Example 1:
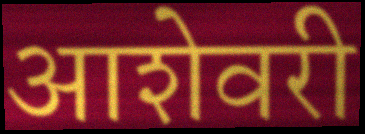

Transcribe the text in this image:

आशेवरी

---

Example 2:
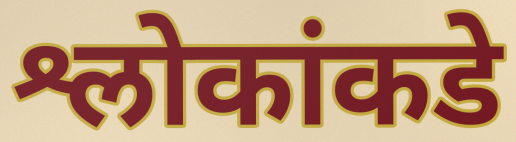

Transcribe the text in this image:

श्लोकांकडे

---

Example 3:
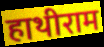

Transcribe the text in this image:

हाथीराम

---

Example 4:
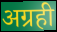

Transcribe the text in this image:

अग्रही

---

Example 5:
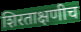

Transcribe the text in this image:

शिरताक्षणीच